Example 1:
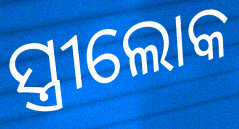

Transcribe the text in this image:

ସ୍ତ୍ରୀଲୋକ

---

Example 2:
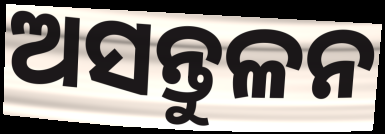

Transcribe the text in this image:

ଅସନ୍ତୁଳନ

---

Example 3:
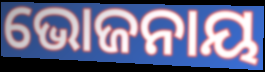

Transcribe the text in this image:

ଭୋଜନାୟ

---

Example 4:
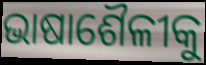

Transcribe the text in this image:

ଭାଷାଶୈଳୀକୁ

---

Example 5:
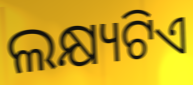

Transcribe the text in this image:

ଲକ୍ଷ୍ୟଟିଏ